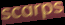
scarps